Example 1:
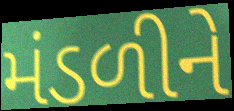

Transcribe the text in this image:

મંડળીને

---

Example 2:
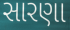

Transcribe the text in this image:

સારણા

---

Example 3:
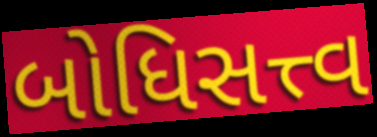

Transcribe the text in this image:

બોધિસત્ત્વ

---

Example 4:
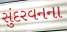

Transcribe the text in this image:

સુંદરવનના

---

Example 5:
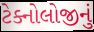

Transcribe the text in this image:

ટેક્નોલોજીનું